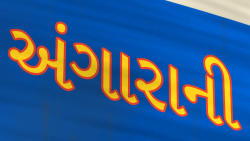
અંગારાની